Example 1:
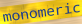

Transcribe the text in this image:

monomeric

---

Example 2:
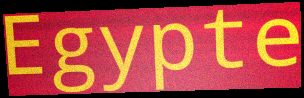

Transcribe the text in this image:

Egypte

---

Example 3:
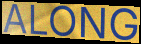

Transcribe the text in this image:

ALONG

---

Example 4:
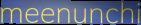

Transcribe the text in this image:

meenunchi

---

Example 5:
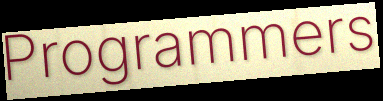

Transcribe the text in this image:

Programmers